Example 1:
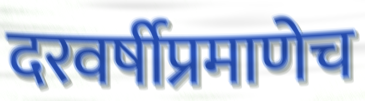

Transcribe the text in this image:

दरवर्षीप्रमाणेच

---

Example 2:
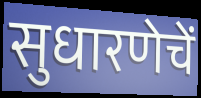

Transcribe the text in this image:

सुधारणेचें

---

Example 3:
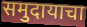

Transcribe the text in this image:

समुदायाचा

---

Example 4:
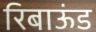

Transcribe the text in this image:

रिबाऊंड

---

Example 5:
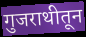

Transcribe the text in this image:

गुजराथीतून